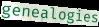
genealogies